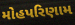
મોહપરિણામ